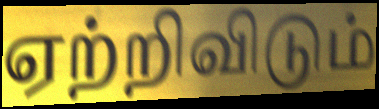
ஏற்றிவிடும்